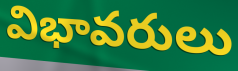
విభావరులు